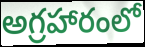
అగ్రహారంలో